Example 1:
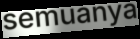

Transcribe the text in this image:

semuanya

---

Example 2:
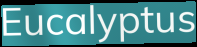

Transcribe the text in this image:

Eucalyptus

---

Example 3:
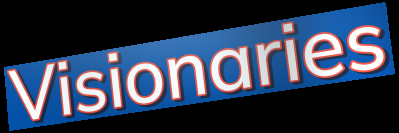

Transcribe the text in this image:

Visionaries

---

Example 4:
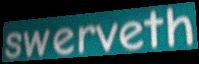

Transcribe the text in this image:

swerveth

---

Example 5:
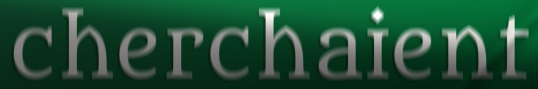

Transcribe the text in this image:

cherchaient